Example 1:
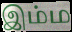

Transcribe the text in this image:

இம்ம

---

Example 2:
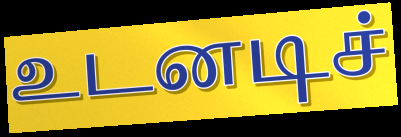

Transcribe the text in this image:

உடனடிச்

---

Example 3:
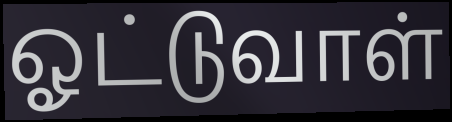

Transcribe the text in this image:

ஓட்டுவாள்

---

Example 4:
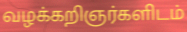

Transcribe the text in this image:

வழக்கறிஞர்களிடம்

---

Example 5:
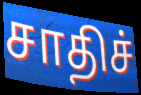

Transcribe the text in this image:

சாதிச்